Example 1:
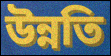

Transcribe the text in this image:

উন্নতি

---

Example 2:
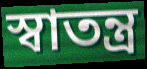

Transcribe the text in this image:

স্বাতন্ত্র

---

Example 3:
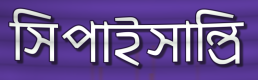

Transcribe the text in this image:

সিপাইসান্ত্রি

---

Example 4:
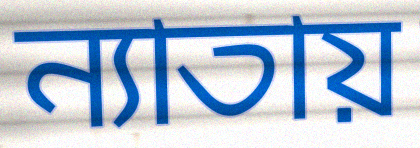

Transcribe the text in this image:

ন্যাতায়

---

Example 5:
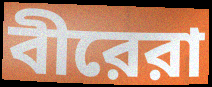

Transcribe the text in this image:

বীরেরা